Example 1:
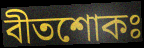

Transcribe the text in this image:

বীতশোকঃ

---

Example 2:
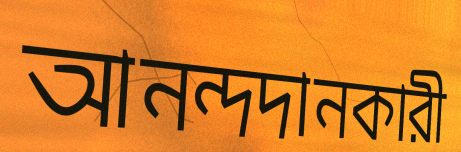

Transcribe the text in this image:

আনন্দদানকারী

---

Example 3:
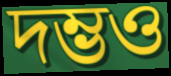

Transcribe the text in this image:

দম্ভও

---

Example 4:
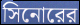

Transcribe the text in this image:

সিনোরের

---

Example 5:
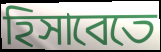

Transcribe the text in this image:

হিসাবেতে